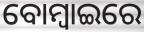
ବୋମ୍ୱାଇରେ